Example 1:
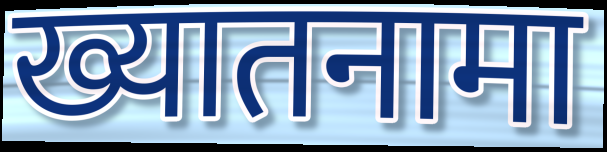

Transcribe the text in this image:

ख्यातनामा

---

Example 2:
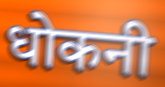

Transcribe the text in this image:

धोकनी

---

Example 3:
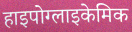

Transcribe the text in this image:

हाइपोग्लाइकेमिक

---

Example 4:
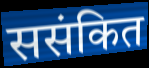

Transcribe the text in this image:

ससंकित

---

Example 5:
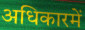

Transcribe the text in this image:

अधिकारमें